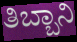
ತಿಬ್ಬಾನಿ